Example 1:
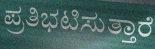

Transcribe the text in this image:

ಪ್ರತಿಭಟಿಸುತ್ತಾರೆ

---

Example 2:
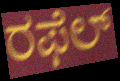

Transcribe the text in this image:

ರಫೆಲ್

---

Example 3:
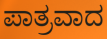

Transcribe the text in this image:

ಪಾತ್ರವಾದ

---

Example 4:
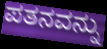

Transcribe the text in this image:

ಪತನವನ್ನು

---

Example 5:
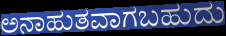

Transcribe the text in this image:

ಅನಾಹುತವಾಗಬಹುದು